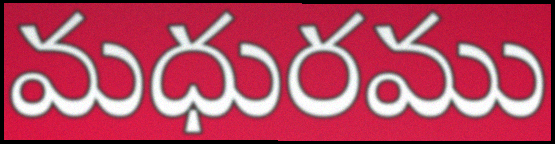
మధురము